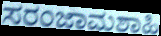
ಸರಂಜಾಮಶಾಹಿ